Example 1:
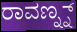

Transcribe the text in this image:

ರಾವಣ್ನ್ನ್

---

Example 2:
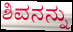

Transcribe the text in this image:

ಶಿವನನ್ನು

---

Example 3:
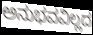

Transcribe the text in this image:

ಅನುಭವವಿಲ್ಲದ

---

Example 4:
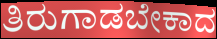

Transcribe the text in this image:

ತಿರುಗಾಡಬೇಕಾದ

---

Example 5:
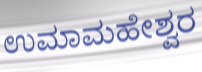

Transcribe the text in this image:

ಉಮಾಮಹೇಶ್ವರ